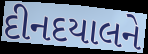
દીનદયાલને